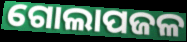
ଗୋଲାପଜଳ